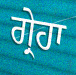
ਗ੍ਰੇਹਾ